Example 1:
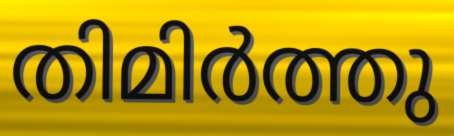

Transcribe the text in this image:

തിമിർത്തു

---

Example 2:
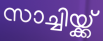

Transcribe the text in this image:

സാച്ചിയ്ക്ക്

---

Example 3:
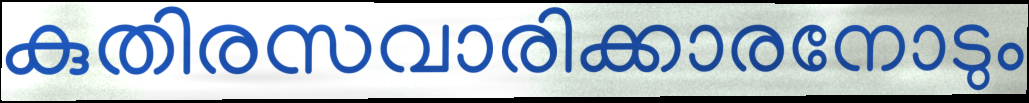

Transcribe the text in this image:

കുതിരസവാരിക്കാരനോടും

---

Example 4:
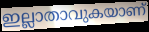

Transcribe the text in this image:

ഇല്ലാതാവുകയാണ്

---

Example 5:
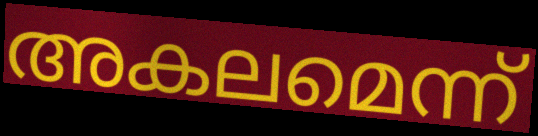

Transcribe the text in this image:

അകലമെന്ന്